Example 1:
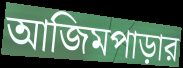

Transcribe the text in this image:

আজিমপাড়ার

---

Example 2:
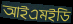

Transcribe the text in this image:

আইএমইডি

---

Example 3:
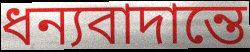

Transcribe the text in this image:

ধন্যবাদান্তে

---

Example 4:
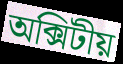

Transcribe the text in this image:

অক্সিটীয়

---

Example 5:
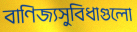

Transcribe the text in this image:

বাণিজ্যসুবিধাগুলো